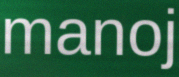
manoj